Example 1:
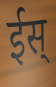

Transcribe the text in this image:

ईस्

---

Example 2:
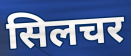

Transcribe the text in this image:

सिलचर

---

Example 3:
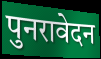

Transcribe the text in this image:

पुनरावेदन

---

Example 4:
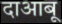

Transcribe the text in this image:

दाआबू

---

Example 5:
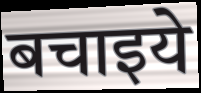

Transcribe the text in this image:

बचाइये